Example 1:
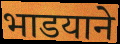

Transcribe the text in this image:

भाडयाने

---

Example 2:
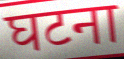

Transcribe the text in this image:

घटना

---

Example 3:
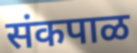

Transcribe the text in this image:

संकपाळ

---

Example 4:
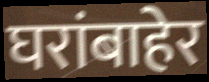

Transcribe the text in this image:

घरांबाहेर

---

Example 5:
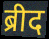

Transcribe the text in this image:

ब्रीद